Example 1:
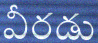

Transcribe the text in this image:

వీరడు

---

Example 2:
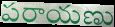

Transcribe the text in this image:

పరాయణు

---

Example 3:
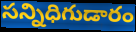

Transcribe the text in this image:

సన్నిధిగుడారం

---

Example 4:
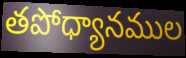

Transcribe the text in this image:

తపోధ్యానముల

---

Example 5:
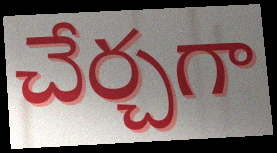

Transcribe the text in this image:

చేర్చగా